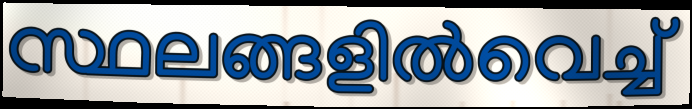
സ്ഥലങ്ങളിൽവെച്ച്